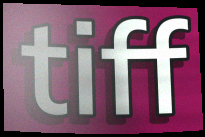
tiff